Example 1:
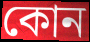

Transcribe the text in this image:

কোন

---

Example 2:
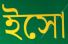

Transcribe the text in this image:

ইসো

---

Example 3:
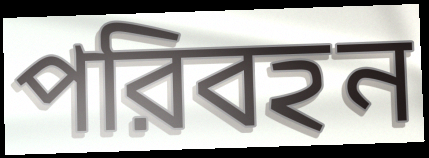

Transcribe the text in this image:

পরিবহন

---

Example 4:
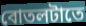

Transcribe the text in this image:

বোতলটাতে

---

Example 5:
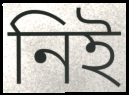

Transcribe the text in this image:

নিই